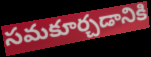
సమకూర్చడానికి